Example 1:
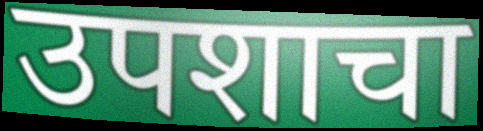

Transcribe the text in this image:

उपशाचा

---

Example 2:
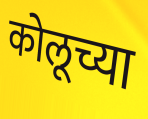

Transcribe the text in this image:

कोलूच्या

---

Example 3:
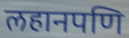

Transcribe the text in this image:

लहानपणि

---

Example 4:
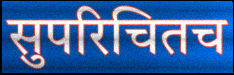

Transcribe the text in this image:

सुपरिचितच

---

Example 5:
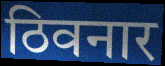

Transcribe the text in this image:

ठिवनार